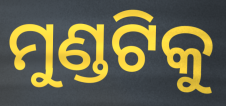
ମୁଣ୍ଡଟିକୁ